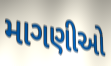
માગણીઓ